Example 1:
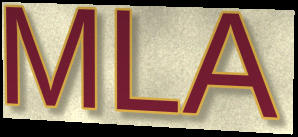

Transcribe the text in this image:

MLA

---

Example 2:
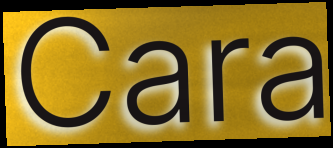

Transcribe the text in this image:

Cara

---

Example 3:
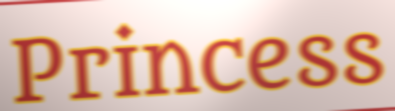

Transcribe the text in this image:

Princess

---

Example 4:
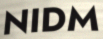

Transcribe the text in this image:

NIDM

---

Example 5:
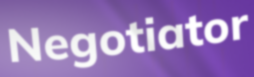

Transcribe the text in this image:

Negotiator